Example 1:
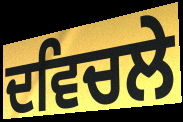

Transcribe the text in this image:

ਦਵਿਚਲੇ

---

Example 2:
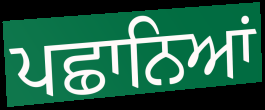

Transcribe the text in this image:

ਪਛਾਨਿਆਂ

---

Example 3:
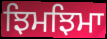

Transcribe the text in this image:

ਝਿਮਝਿਮਾ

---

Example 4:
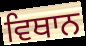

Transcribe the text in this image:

ਵਿਥਾਨ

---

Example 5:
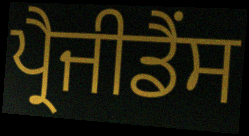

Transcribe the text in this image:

ਪ੍ਰੈਜੀਡੈਂਸ